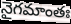
నైగమాంతః